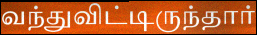
வந்துவிட்டிருந்தார்